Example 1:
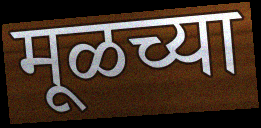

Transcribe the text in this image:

मूळच्या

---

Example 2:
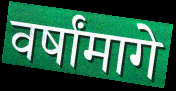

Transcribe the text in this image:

वर्षांमागे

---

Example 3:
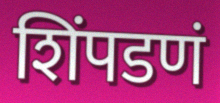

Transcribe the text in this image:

शिंपडणं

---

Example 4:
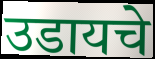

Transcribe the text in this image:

उडायचे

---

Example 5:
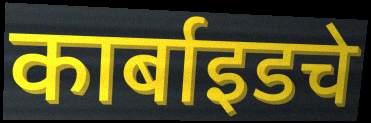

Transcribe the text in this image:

कार्बाइडचे